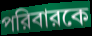
পরিবারকে